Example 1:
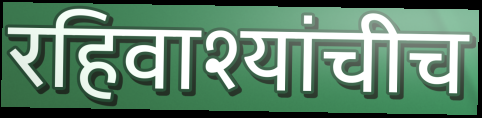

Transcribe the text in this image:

रहिवाश्यांचीच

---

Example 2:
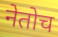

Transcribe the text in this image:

नेतोच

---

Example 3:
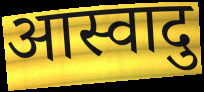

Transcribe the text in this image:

आस्वादु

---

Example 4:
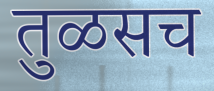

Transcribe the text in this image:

तुळसच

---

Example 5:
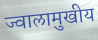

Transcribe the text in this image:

ज्वालामुखीय